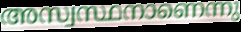
അസ്വസ്ഥനാണെന്നു